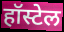
हॉस्टेल